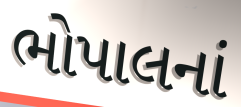
ભોપાલનાં